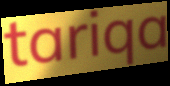
tariqa